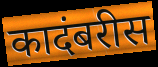
कादंबरीस